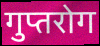
गुप्तरोग